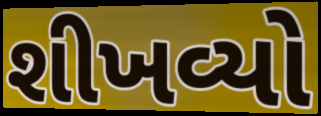
શીખવ્યો